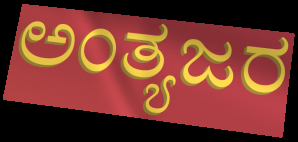
ಅಂತ್ಯಜರ